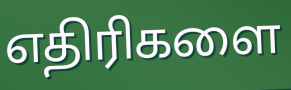
எதிரிகளை